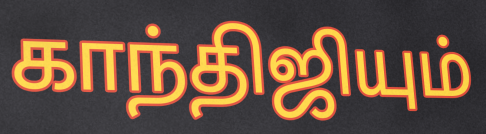
காந்திஜியும்